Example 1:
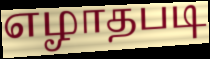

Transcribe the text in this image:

எழாதபடி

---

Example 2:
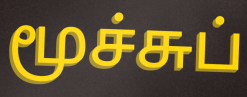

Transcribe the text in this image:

மூச்சுப்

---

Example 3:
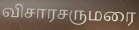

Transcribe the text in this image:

விசாரசருமரை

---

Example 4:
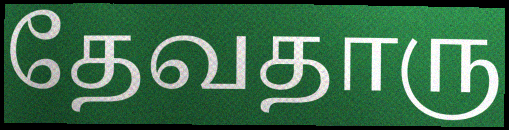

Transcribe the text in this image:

தேவதாரு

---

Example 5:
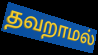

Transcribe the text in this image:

தவறாமல்